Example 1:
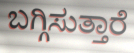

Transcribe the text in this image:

ಬಗ್ಗಿಸುತ್ತಾರೆ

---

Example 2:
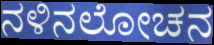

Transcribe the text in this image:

ನಳಿನಲೋಚನ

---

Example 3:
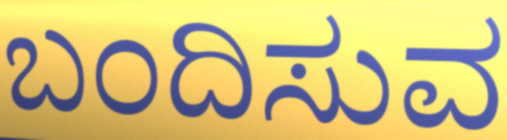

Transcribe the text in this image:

ಬಂದಿಸುವ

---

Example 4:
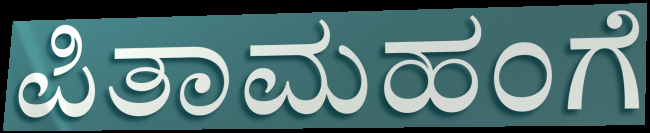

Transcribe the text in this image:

ಪಿತಾಮಹಂಗೆ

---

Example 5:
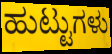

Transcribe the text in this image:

ಹುಟ್ಟುಗಳು